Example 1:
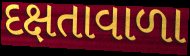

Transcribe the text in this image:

દક્ષતાવાળા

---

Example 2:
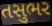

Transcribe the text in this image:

તસુભર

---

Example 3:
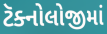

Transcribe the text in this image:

ટૅક્નોલોજીમાં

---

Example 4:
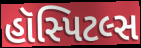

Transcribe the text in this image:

હૉસ્પિટલ્સ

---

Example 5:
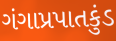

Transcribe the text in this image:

ગંગાપ્રપાતકુંડ